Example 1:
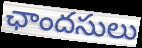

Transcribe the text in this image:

ఛాందసులు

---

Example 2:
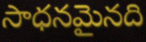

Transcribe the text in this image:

సాధనమైనది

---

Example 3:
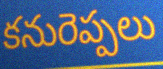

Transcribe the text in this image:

కనురెప్పలు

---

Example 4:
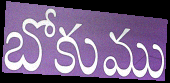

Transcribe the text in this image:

బోకుము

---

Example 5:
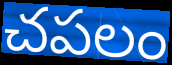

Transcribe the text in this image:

చపలం